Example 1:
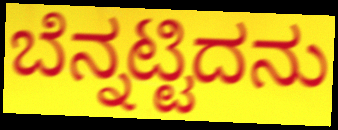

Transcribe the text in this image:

ಬೆನ್ನಟ್ಟಿದನು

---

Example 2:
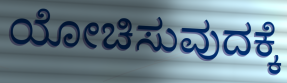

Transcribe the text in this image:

ಯೋಚಿಸುವುದಕ್ಕೆ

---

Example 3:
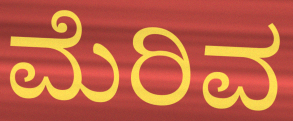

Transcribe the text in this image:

ಮೆರಿವ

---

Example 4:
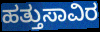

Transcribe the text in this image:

ಹತ್ತುಸಾವಿರ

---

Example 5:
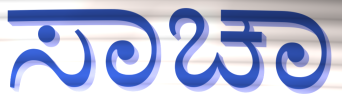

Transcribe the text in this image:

ಸಾಚಾ